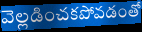
వెల్లడించకపోవడంతో